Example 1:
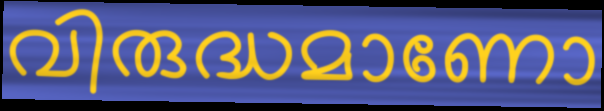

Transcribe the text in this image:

വിരുദ്ധമാണോ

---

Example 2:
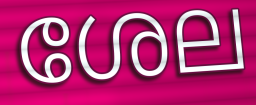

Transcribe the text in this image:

ശേല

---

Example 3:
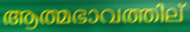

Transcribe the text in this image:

ആത്മഭാവത്തില്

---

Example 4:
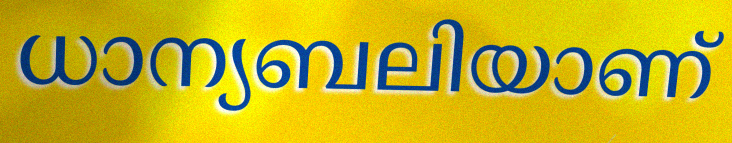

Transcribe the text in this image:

ധാന്യബലിയാണ്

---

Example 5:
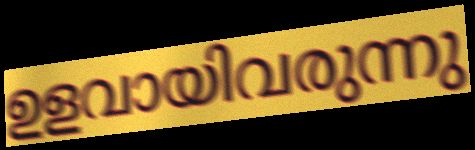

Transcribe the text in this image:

ഉളവായിവരുന്നു